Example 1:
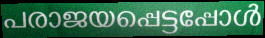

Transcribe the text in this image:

പരാജയപ്പെട്ടപ്പോൾ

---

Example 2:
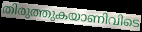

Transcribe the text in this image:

തിരുത്തുകയാണിവിടെ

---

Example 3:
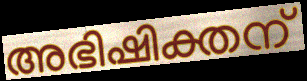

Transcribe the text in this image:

അഭിഷിക്തന്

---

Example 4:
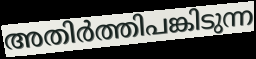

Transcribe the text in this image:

അതിർത്തിപങ്കിടുന്ന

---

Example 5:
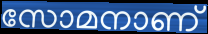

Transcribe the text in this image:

സോമനാണ്